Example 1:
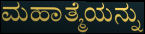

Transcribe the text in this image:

ಮಹಾತ್ಮೆಯನ್ನು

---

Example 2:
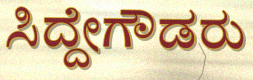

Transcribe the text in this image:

ಸಿದ್ದೇಗೌಡರು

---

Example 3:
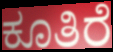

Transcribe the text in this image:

ಕೂತಿರೆ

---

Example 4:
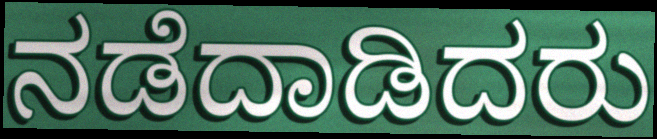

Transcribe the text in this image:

ನಡೆದಾಡಿದರು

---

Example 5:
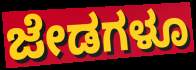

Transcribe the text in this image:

ಜೇಡಗಳೂ